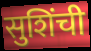
सुशिंची